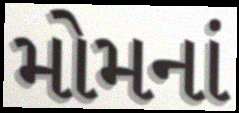
મોમનાં